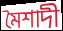
মৈশাদী